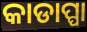
କାଡାପ୍ପା